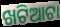
ଖଟିଆଟା